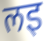
लइ